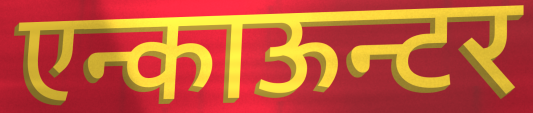
एन्काऊन्टर